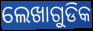
ଲେଖାଗୁଡିକ